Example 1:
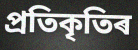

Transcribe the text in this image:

প্ৰতিকৃতিৰ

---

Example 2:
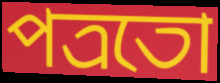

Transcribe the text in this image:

পত্ৰতো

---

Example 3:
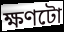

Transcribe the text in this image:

ক্ষণটো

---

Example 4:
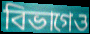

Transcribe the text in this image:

বিভাগেও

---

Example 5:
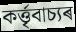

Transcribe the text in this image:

কৰ্ত্তৃবাচ্যৰ